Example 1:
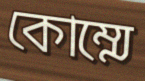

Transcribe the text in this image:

কোম্মে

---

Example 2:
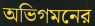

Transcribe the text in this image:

অভিগমনের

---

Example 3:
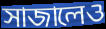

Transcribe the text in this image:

সাজালেও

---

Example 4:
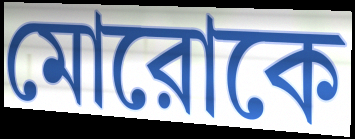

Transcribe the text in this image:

মোরোকে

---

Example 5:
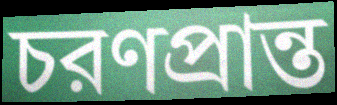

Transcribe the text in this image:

চরণপ্রান্ত